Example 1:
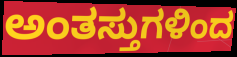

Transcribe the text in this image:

ಅಂತಸ್ತುಗಳಿಂದ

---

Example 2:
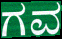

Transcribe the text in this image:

ಗವ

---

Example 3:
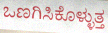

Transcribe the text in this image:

ಒಣಗಿಸಿಕೊಳ್ಳುತ್ತ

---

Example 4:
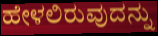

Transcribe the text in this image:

ಹೇಳಲಿರುವುದನ್ನು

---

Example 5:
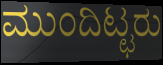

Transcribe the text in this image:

ಮುಂದಿಟ್ಟರು